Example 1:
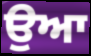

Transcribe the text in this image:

ਉਆ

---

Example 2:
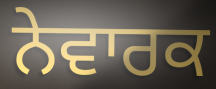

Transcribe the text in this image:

ਨੇਵਾਰਕ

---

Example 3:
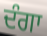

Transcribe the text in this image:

ਦੰਗਾ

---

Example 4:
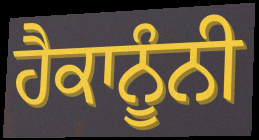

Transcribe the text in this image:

ਹੈਕਾਨੂੰਨੀ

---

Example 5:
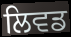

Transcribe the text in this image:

ਲਿਵਡ